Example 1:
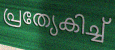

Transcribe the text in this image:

പ്രത്യേകിച്ച്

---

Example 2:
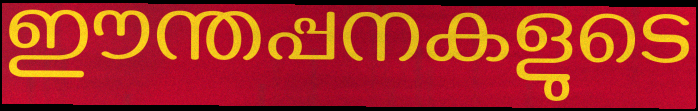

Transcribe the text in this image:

ഈന്തപ്പനകളുടെ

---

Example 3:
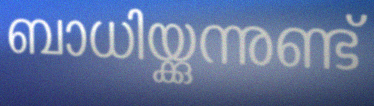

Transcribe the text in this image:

ബാധിയ്ക്കുന്നുണ്ട്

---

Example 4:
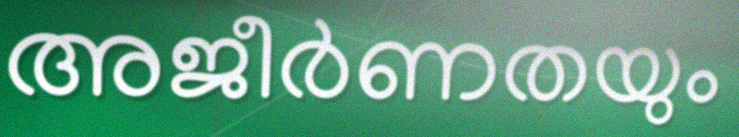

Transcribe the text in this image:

അജീർണതയും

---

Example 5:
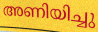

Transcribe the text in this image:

അണിയിച്ചു